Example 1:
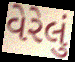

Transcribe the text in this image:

વેરેલું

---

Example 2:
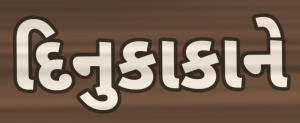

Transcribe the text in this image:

દિનુકાકાને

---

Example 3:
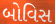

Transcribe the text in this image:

બોવિસ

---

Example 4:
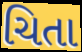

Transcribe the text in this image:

ચિતા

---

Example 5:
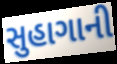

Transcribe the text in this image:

સુહાગાની